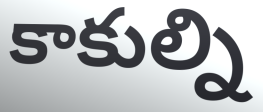
కాకుల్ని